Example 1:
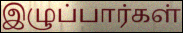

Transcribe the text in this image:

இழுப்பார்கள்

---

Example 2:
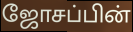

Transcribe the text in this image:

ஜோசப்பின்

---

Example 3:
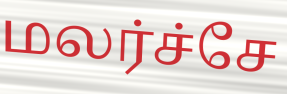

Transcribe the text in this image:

மலர்ச்சே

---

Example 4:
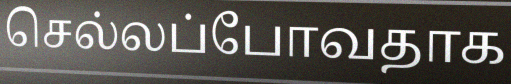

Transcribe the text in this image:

செல்லப்போவதாக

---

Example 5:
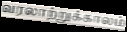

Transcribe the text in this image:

வரலாற்றுக்காலம்